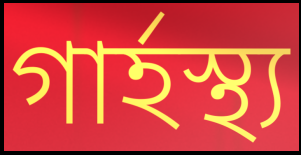
গাৰ্হস্থ্য